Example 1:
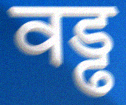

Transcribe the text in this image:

वड्ढ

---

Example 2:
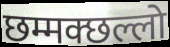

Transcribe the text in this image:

छम्मक्छल्लो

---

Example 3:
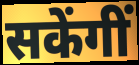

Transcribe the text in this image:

सकेंगीं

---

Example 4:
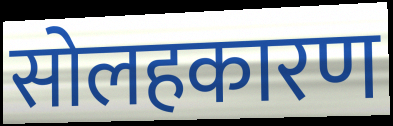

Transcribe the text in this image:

सोलहकारण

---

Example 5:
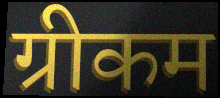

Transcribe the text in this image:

ग्रीकम